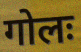
गोलः